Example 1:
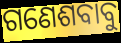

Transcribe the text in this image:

ଗଣେଶବାବୁ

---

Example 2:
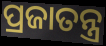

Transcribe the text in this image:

ପ୍ରଜାତନ୍ତ୍ର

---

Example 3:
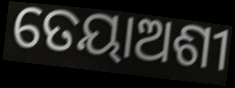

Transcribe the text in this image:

ତେୟାଅଶୀ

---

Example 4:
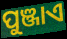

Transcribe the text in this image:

ପୁଞ୍ଜାଏ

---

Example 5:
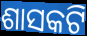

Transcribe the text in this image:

ଶାସକଟି